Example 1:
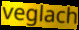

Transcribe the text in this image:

veglach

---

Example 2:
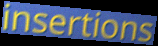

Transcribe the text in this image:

insertions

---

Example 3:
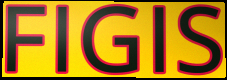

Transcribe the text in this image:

FIGIS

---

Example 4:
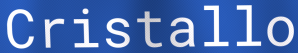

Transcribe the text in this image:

Cristallo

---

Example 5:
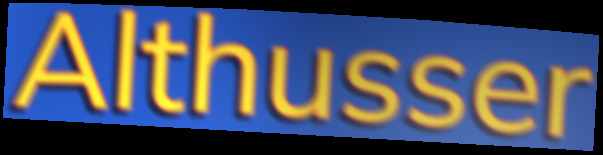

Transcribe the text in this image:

Althusser